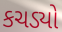
કચડ્યો